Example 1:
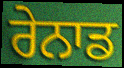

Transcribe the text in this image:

ਰੇਨਾਡ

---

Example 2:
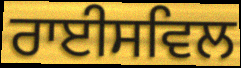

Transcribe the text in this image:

ਰਾਈਸਵਿਲ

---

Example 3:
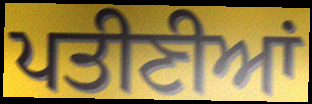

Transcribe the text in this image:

ਪਤੀਣੀਆਂ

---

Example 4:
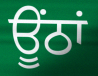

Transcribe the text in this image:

ਊਂਠਾਂ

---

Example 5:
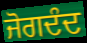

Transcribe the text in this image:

ਜੋਗਦੰਦ